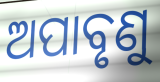
ଅପାବୃଣୁ